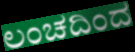
ಲಂಚದಿಂದ